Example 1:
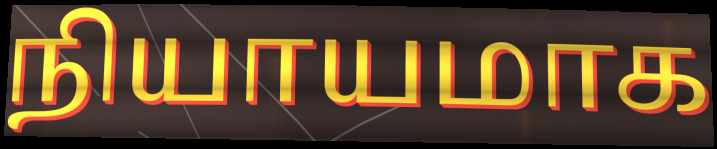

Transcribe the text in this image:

நியாயமாக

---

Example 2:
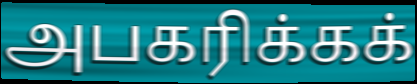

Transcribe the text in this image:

அபகரிக்கக்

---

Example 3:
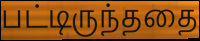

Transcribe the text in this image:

பட்டிருந்ததை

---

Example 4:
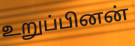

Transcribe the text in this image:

உறுப்பினன்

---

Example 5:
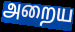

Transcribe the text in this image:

அறைய